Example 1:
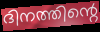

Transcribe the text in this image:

ദിനത്തിന്റെ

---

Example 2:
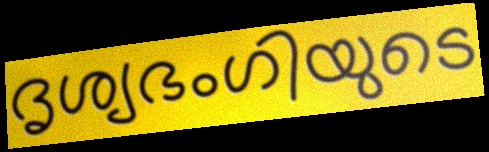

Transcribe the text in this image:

ദൃശ്യഭംഗിയുടെ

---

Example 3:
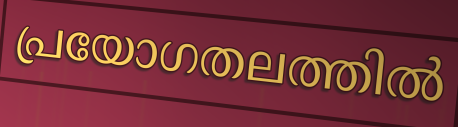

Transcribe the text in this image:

പ്രയോഗതലത്തിൽ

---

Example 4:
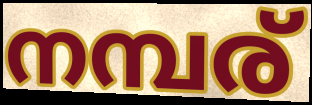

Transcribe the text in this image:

നമ്പര്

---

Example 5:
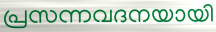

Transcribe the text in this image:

പ്രസന്നവദനയായി